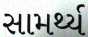
સામર્થ્ય